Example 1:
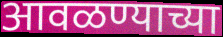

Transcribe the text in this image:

आवळण्याच्या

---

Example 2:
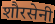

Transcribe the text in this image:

शौरसेनी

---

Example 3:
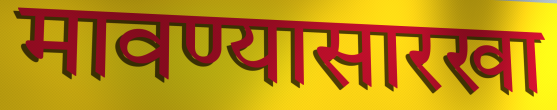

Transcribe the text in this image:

मावण्यासारखा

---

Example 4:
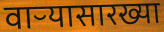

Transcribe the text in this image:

वाऱ्यासारख्या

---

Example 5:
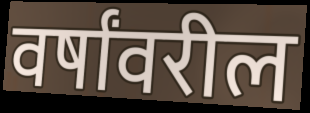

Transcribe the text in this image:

वर्षांवरील